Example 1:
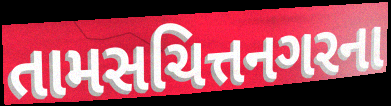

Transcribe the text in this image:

તામસચિત્તનગરના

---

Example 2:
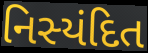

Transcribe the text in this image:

નિસ્યંદિત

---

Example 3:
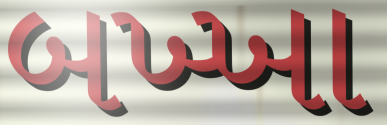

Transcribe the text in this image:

બખ્ખા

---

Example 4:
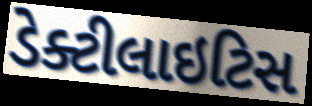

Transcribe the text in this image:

ડેક્ટીલાઇટિસ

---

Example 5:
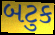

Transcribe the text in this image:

બટુક